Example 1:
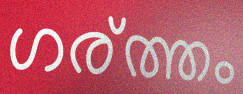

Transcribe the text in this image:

ഗര്ത്തം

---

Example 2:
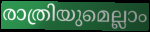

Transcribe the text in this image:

രാത്രിയുമെല്ലാം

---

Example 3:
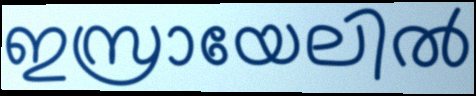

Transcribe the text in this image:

ഇസ്രായേലിൽ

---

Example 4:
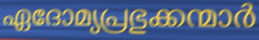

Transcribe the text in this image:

ഏദോമ്യപ്രഭുക്കന്മാർ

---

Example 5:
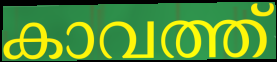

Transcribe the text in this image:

കാവത്ത്